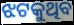
ଝଟକୁଥିବ